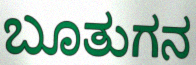
ಬೂತುಗನ